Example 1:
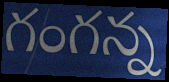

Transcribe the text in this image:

గంగన్న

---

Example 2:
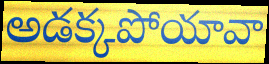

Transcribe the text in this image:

అడక్కపోయావా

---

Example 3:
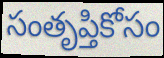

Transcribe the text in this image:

సంతృప్తికోసం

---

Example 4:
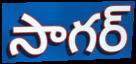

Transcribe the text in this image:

సాగర్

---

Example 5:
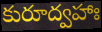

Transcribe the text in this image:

కురూద్వహాః